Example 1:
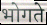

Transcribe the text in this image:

भोगते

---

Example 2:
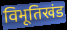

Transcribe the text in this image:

विभूतिखंड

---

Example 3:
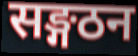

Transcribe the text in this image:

सङ्गठन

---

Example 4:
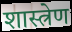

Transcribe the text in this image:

शास्त्रेण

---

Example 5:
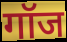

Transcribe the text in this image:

गॉज